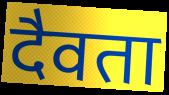
दैवता